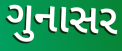
ગુનાસર